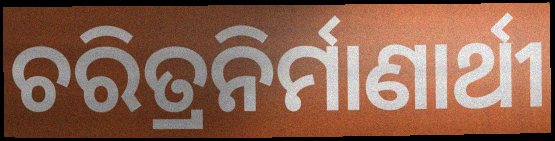
ଚରିତ୍ରନିର୍ମାଣାର୍ଥୀ